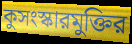
কুসংস্কারমুক্তির